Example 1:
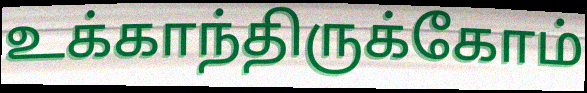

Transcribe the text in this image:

உக்காந்திருக்கோம்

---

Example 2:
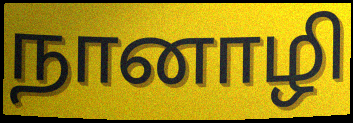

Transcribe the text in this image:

நானாழி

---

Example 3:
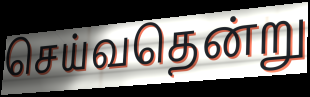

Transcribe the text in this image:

செய்வதென்று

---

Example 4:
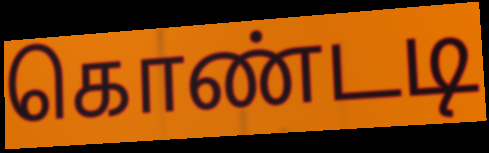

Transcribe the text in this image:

கொண்டடி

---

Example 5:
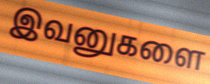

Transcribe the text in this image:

இவனுகளை